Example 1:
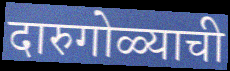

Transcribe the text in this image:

दारुगोळ्याची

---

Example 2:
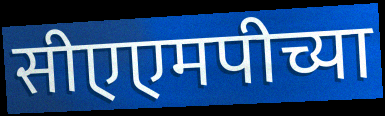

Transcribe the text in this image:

सीएएमपीच्या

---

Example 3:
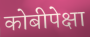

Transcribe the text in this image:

कोबीपेक्षा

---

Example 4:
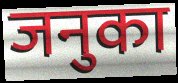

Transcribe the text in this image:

जनुका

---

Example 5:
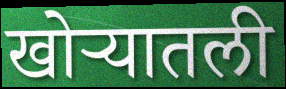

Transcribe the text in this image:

खोऱ्यातली